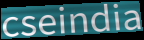
cseindia